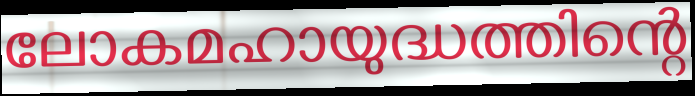
ലോകമഹായുദ്ധത്തിന്റെ